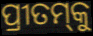
ପ୍ରୀତମ୍‌କୁ